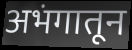
अभंगातून